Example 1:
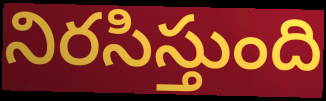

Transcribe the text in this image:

నిరసిస్తుంది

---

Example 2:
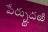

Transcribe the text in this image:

పేర్న్దుదఱి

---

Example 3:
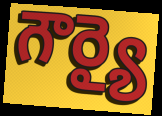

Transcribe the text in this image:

గౌర్యై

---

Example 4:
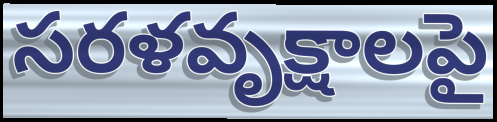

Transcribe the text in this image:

సరళవృక్షాలపై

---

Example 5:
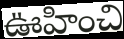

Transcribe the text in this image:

ఊహించి